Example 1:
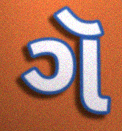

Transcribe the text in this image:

ગૅ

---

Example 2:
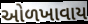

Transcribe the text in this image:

ઓળખાવાય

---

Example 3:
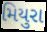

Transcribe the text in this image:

મિયુરા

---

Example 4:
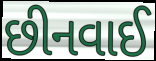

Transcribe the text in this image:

છીનવાઈ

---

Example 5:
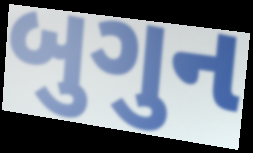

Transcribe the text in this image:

બુગુન